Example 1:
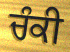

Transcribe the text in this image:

ਚੰਕੀ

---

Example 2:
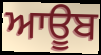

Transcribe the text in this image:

ਆਊਬ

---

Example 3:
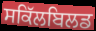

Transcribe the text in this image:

ਸਕਿੱਲਬਿਲਡ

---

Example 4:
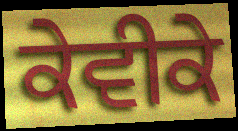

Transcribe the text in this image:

ਕੇਵੀਕੇ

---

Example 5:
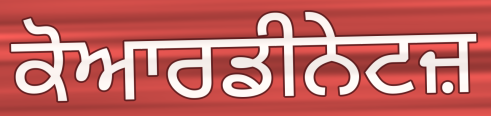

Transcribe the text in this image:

ਕੋਆਰਡੀਨੇਟਜ਼